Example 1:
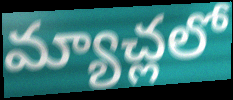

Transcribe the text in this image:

మ్యాచ్లలో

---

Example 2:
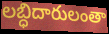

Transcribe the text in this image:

లబ్ధిదారులంతా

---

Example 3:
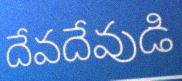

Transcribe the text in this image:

దేవదేవుడి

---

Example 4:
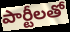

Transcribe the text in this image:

పార్టీలతో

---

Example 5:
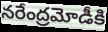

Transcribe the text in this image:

నరేంద్రమోడీకి